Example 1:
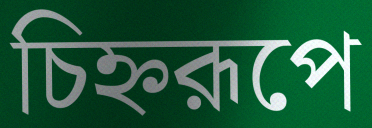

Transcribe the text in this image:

চিহ্নরূপে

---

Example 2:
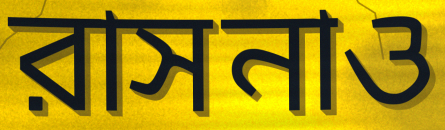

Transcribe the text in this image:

রাসনাও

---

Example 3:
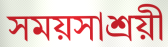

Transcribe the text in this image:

সময়সাশ্রয়ী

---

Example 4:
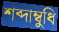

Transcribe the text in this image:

শব্দাম্বুধি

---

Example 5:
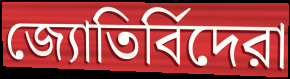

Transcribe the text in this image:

জ্যোতির্বিদেরা